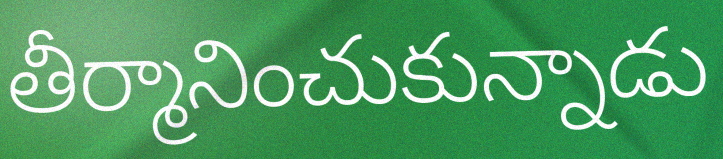
తీర్మానించుకున్నాడు